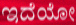
ಇದೆಯೋ